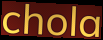
chola